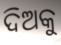
ଦିଅକୁ